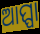
ଆପ୍ପା